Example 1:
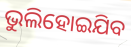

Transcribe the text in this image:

ଭୁଲିହୋଇଯିବ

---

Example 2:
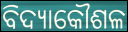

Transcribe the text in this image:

ବିଦ୍ୟାକୌଶଳ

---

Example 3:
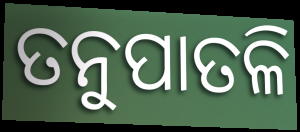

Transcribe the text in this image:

ତନୁପାତଳି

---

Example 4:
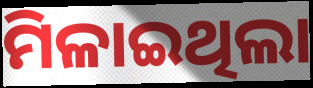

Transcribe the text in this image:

ମିଳାଇଥିଲା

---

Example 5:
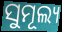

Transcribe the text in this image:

ସୁମୂଲ୍ୟ